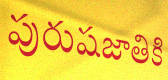
పురుషజాతికి